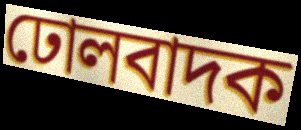
ঢোলবাদক